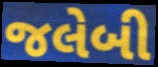
જલેબી